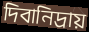
দিবানিদ্রায়